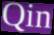
Qin